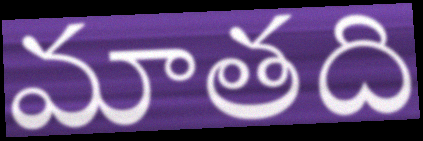
మాతది